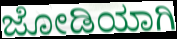
ಜೋಡಿಯಾಗಿ